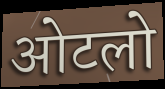
ओटलो